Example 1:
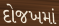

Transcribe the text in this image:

દોજખમાં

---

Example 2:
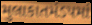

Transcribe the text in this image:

મુલાકાતમંડપમાં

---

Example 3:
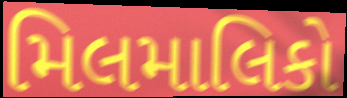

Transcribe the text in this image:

મિલમાલિકો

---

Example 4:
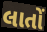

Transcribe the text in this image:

લાતોં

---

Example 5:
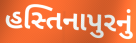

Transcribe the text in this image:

હસ્તિનાપુરનું